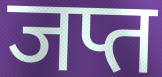
जप्त